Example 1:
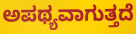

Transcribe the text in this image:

ಅಪಥ್ಯವಾಗುತ್ತದೆ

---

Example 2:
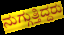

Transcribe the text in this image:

ನುಗ್ಗುತ್ತಿದ್ದರು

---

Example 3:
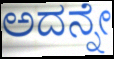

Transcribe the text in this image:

ಅದನ್ನೇ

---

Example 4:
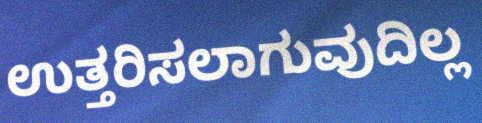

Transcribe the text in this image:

ಉತ್ತರಿಸಲಾಗುವುದಿಲ್ಲ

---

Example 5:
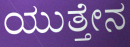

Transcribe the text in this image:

ಯುತ್ತೇನ